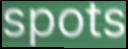
spots